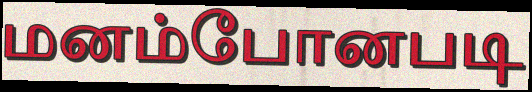
மனம்போனபடி